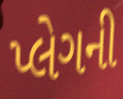
પ્લેગની